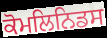
ਕੋਮਲਿਨਿਡਸ